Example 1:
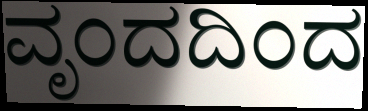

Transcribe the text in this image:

ವೃಂದದಿಂದ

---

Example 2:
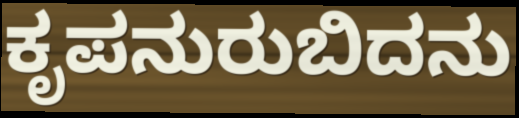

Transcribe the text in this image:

ಕೃಪನುರುಬಿದನು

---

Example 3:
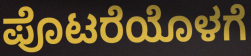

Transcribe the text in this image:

ಪೊಟರೆಯೊಳಗೆ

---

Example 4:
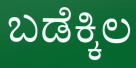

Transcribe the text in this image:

ಬಡೆಕ್ಕಿಲ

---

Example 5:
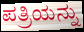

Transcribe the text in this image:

ಪತ್ರಿಯನ್ನು